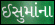
ઈસુમાંના